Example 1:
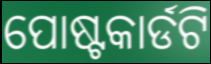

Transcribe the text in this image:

ପୋଷ୍ଟକାର୍ଡଟି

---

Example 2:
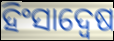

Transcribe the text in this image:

ହିଂସାଦ୍ୱେଷ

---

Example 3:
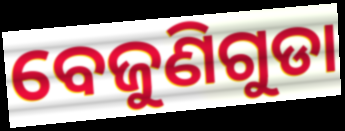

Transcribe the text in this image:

ବେଜୁଣିଗୁଡା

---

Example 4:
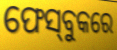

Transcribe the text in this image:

ଫେସ୍‌ବୁକରେ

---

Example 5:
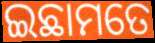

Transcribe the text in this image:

ଇଛାମତେ